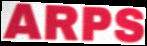
ARPS